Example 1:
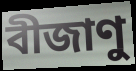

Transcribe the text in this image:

বীজাণু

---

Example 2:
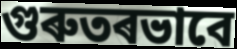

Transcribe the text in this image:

গুৰুতৰভাবে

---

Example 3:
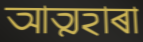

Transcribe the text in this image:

আত্মহাৰা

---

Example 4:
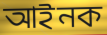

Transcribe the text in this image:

আইনক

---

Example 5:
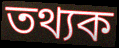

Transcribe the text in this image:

তথ্যক